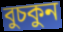
বুচকুন